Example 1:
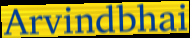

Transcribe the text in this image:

Arvindbhai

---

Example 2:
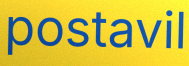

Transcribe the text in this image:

postavil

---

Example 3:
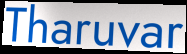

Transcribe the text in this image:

Tharuvar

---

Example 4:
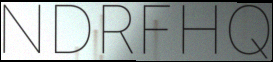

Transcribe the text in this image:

NDRFHQ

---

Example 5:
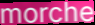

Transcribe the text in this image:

morche